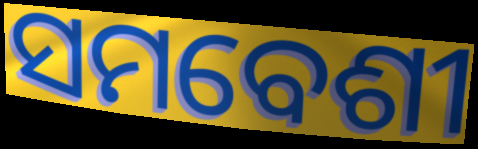
ସମବେଶୀ